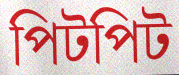
পিটপিট